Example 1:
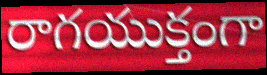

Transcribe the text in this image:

రాగయుక్తంగా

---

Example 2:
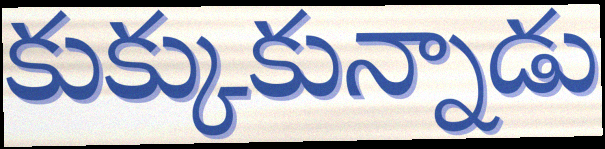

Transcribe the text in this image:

కుక్కుకున్నాడు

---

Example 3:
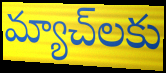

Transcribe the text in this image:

మ్యాచ్‌లకు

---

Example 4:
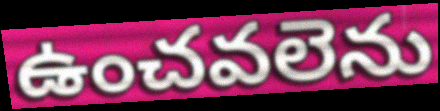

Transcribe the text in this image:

ఉంచవలెను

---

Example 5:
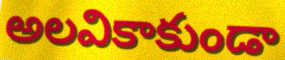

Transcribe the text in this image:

అలవికాకుండా